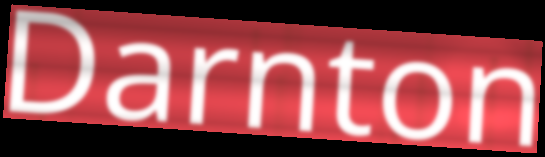
Darnton